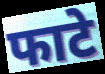
फाटे